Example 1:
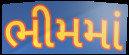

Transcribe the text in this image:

ભીમમાં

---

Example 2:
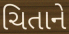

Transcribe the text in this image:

ચિતાને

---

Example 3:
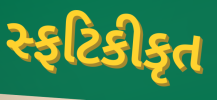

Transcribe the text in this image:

સ્ફટિકીકૃત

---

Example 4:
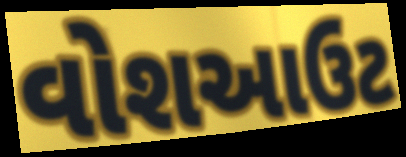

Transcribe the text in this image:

વોશઆઉટ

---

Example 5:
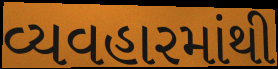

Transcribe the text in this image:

વ્યવહારમાંથી